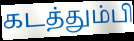
கடத்தும்பி